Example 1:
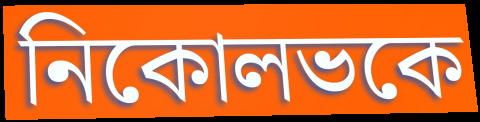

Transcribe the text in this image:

নিকোলভকে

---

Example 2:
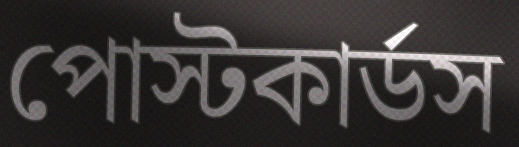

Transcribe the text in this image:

পোস্টকার্ডস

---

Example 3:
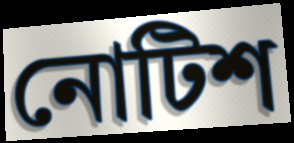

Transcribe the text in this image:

নোটিশ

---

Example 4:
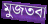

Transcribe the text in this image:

মুজতবা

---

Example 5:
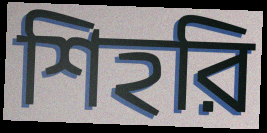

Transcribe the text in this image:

শিহরি